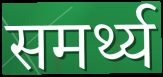
समर्थ्य